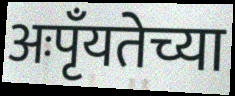
अःपृँयतेच्या